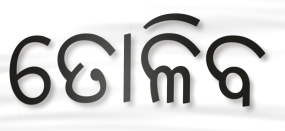
ତୋଳିବ